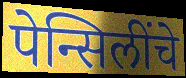
पेन्सिलींचे